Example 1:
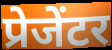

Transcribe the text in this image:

प्रेजेंटर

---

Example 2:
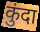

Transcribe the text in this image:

कुंदा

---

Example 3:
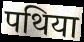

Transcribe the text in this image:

पथिया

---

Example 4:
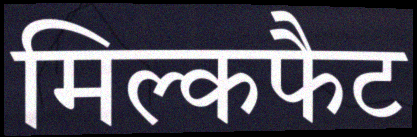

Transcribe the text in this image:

मिल्कफैट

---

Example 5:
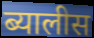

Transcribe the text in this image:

ब्यालीस